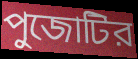
পুজোটির